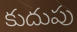
కుదుపు